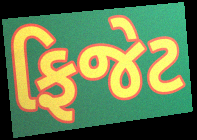
ફિજેટ